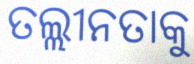
ତଲ୍ଲୀନତାକୁ